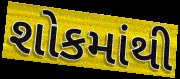
શોકમાંથી